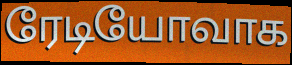
ரேடியோவாக